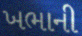
ખભાની